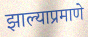
झाल्याप्रमाणे